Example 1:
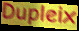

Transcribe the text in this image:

Dupleix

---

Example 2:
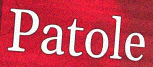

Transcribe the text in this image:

Patole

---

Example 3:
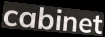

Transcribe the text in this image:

cabinet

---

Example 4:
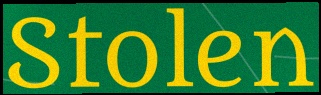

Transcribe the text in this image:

Stolen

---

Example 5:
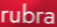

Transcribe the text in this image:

rubra